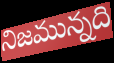
నిజమున్నది